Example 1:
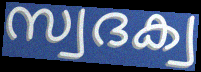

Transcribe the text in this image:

സ്വദക്വ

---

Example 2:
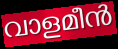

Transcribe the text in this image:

വാളമീൻ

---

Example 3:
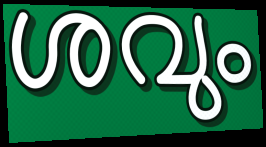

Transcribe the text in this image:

ശവും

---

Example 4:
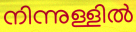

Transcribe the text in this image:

നിന്നുള്ളിൽ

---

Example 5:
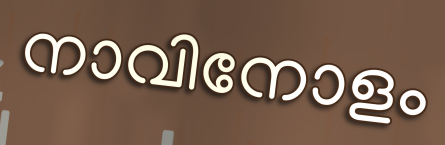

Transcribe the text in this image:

നാവിനോളം